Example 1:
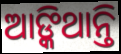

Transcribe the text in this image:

ଆଙ୍କିଥାନ୍ତି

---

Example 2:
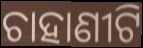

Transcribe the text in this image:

ଚାହାଣୀଟି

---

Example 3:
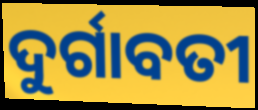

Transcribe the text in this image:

ଦୁର୍ଗାବତୀ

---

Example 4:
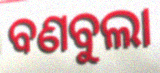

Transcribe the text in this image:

ବଣବୁଲା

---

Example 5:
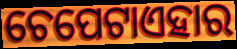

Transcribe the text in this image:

ଚେପେଟାଏହାର